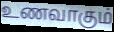
உணவாகும்